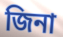
জিনা